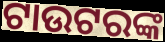
ଟାଉଟରଙ୍କ